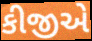
કીજીએ